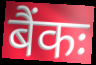
बैंकः